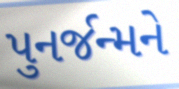
પુનર્જન્મને